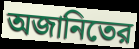
অজানিতের